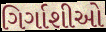
ગિર્ગાશીઓ